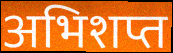
अभिशप्त